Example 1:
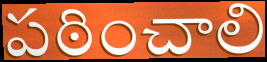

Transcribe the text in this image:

పఠించాలి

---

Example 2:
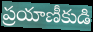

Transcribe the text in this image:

ప్రయాణీకుడి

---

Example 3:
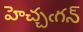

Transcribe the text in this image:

హెచ్చఁగన్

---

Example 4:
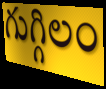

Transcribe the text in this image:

గుగ్గిలం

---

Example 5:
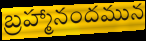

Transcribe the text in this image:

బ్రహ్మానందమున